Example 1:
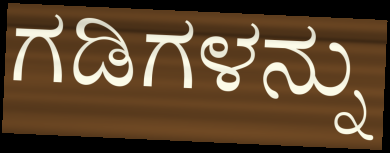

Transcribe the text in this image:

ಗಡಿಗಳನ್ನು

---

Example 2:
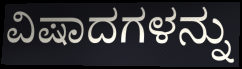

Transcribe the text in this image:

ವಿಷಾದಗಳನ್ನು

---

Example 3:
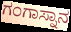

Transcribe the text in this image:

ಗಂಗಾಸ್ನಾನ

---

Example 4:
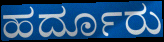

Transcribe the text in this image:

ಹರ್ದೂರು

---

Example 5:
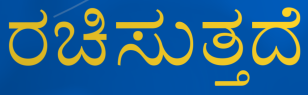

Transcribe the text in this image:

ರಚಿಸುತ್ತದೆ